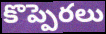
కొప్పెరలు